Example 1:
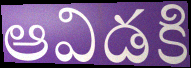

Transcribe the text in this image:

ఆవిడకి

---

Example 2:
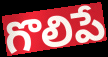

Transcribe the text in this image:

గొలిపే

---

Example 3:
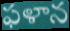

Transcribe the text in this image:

ఫళాన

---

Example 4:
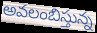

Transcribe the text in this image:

అవలంబిస్తున్న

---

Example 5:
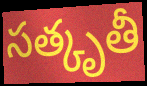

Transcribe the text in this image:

సత్కృతీ